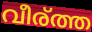
വീര്ത്ത